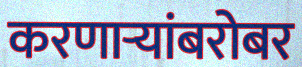
करणार्‍यांबरोबर